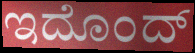
ಇದೊಂದ್